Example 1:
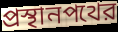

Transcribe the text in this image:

প্রস্থানপথের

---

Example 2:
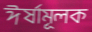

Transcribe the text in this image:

ঈর্ষামূলক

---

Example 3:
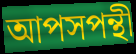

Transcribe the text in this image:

আপসপন্থী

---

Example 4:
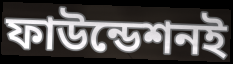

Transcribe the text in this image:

ফাউন্ডেশনই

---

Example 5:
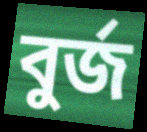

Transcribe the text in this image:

বুর্জ